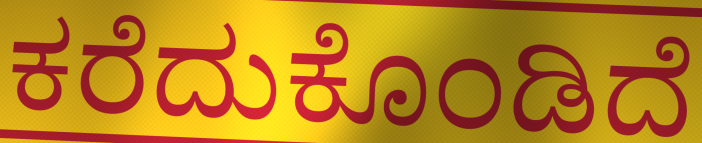
ಕರೆದುಕೊಂಡಿದೆ